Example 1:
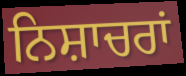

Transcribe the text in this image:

ਨਿਸ਼ਾਚਰਾਂ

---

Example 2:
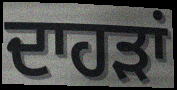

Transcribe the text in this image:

ਦਾਹੜਾਂ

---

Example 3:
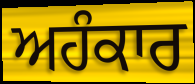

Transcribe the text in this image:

ਅਹੰਕਾਰ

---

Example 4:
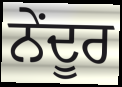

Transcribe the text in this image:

ਨੇਂਦੂਰ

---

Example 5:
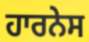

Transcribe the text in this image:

ਹਾਰਨੇਸ